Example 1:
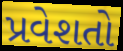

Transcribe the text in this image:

પ્રવેશતો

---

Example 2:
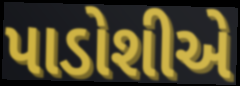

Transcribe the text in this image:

પાડોશીએ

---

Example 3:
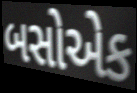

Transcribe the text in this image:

બસોએક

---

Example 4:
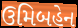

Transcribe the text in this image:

ઉમિબહેન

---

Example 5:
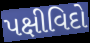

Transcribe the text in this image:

પક્ષીવિદો